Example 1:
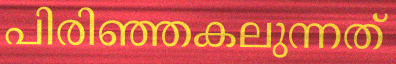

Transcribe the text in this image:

പിരിഞ്ഞകലുന്നത്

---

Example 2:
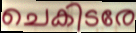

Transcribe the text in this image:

ചെകിടരേ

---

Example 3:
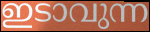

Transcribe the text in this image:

ഇടാവുന്ന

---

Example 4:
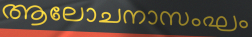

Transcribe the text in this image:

ആലോചനാസംഘം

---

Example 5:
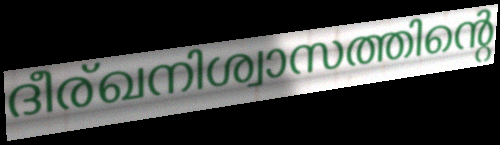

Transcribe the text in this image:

ദീര്ഖനിശ്വാസത്തിന്റെ